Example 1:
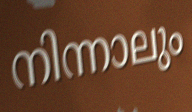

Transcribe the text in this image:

നിന്നാലും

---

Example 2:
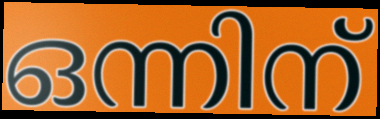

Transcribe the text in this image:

ഒന്നിന്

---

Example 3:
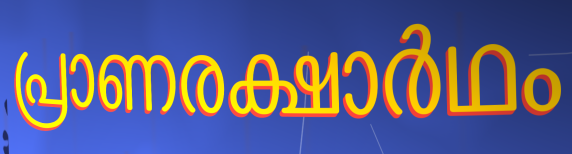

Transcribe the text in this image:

പ്രാണരക്ഷാർഥം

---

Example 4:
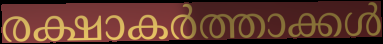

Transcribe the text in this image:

രക്ഷാകർത്താക്കൾ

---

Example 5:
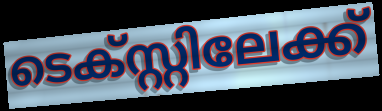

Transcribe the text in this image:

ടെക്സ്റ്റിലേക്ക്